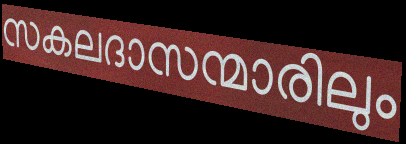
സകലദാസന്മാരിലും